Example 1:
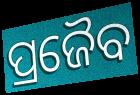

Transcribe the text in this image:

ପ୍ରଜୈବ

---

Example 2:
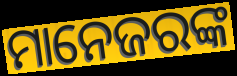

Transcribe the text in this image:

ମାନେଜରଙ୍କ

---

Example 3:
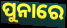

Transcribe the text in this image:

ପୁନାରେ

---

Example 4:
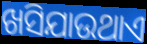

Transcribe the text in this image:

ଖସିଯାଉଥାଏ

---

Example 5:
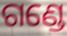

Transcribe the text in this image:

ଗଣ୍ଡେ